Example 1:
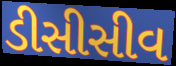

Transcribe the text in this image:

ડીસીસીવ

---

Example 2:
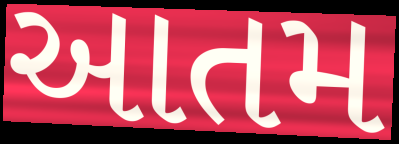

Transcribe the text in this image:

આતમ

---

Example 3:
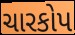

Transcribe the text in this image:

ચારકોપ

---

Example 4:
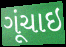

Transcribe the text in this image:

ગૂંચાઇ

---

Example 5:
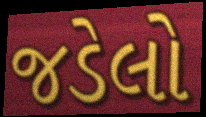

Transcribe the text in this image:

જડેલો